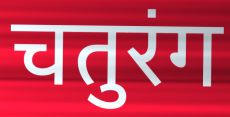
चतुरंग